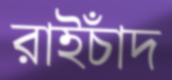
রাইচাঁদ